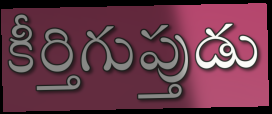
కీర్తిగుప్తుడు